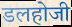
डलहोजी